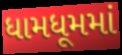
ધામધૂમમાં